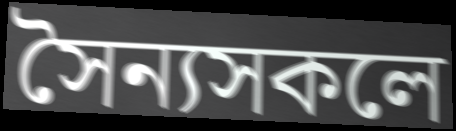
সৈন্যসকলে